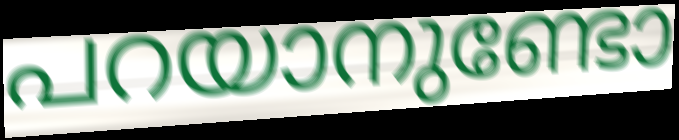
പറയാനുണ്ടോ